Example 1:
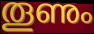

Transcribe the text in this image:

തൂണും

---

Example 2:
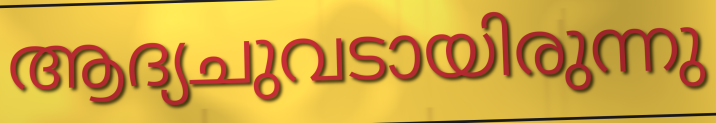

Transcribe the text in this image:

ആദ്യചുവടായിരുന്നു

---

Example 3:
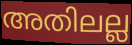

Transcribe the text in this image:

അതിലല്ല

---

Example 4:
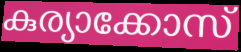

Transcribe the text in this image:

കുര്യാക്കോസ്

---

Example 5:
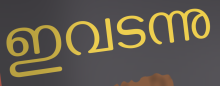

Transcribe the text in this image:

ഇവടന്നു